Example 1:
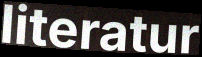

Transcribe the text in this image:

literatur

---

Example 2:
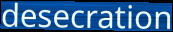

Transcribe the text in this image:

desecration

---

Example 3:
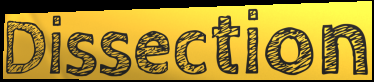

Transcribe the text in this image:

Dissection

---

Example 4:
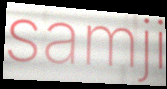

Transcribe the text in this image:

samji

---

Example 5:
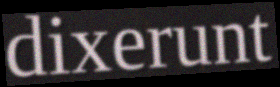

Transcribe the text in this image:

dixerunt